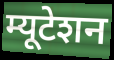
म्यूटेशन